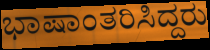
ಭಾಷಾಂತರಿಸಿದ್ದರು